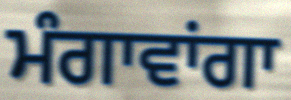
ਮੰਗਾਵਾਂਗਾ